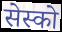
सेस्को